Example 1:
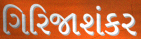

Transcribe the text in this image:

ગિરિજાશંકર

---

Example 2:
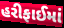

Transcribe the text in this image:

હરીફાઈમાં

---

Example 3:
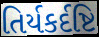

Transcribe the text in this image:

તિર્યકર્દષ્ટિ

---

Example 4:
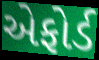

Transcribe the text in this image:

એફોર્ડ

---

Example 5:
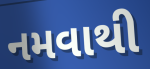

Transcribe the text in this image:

નમવાથી